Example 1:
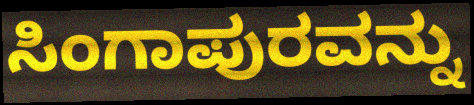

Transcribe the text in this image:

ಸಿಂಗಾಪುರವನ್ನು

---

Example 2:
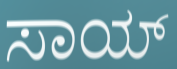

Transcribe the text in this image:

ಸಾಯ್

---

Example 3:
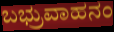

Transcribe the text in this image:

ಬಭ್ರುವಾಹನಂ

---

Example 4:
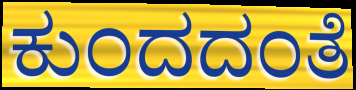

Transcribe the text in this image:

ಕುಂದದಂತೆ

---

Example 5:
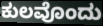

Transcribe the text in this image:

ಕುಲವೊಂದು